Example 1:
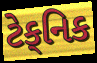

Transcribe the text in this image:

ટેક્‌નિક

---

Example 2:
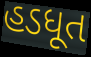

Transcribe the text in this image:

હડધૂત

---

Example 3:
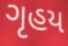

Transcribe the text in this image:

ગૃહય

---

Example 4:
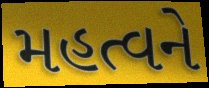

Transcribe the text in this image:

મહત્વને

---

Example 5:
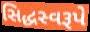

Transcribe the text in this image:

સિદ્ધસ્વરૂપે